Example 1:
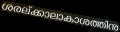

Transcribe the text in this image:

ശരല്ക്കാലാകാശത്തിനു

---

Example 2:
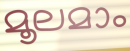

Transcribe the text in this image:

മൂലമാം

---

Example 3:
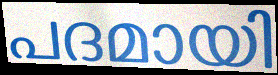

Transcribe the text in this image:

പദമായി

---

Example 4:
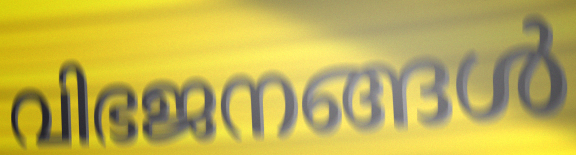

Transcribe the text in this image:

വിഭജനങ്ങൾ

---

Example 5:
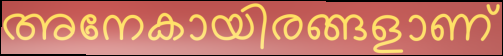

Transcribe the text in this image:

അനേകായിരങ്ങളാണ്